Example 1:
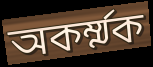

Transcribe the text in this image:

অকৰ্ম্মক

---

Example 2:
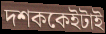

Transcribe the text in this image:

দশককেইটাই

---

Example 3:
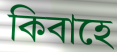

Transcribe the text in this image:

কিবাহে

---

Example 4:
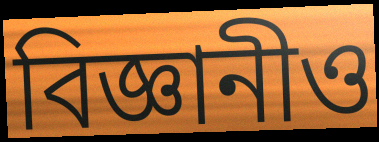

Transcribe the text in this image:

বিজ্ঞানীও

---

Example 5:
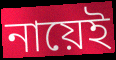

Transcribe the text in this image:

নায়েই